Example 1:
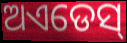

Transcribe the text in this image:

ଅଏଡେସ୍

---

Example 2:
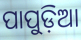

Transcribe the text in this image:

ପାପୁଡ଼ିଆ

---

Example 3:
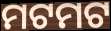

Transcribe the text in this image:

ମଟମଟ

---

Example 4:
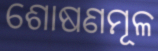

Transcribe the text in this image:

ଶୋଷଣମୂଳ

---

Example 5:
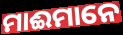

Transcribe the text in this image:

ମାଈମାନେ